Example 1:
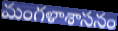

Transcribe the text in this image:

మంగళాశాసనం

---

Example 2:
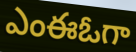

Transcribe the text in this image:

ఎంఈఓగా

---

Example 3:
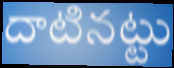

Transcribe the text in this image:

దాటినట్టు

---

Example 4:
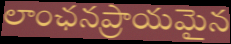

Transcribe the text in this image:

లాంఛనప్రాయమైన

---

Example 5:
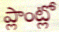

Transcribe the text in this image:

ప్లాంట్లో